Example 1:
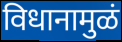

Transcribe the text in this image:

विधानामुळं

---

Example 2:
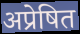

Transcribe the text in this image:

अप्रेषित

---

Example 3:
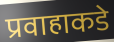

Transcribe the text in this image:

प्रवाहाकडे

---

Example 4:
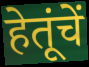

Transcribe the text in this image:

हेतूंचें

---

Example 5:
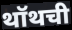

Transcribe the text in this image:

थॉथची